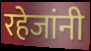
रहेजांनी